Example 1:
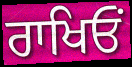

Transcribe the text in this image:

ਰਾਖਿਓਂ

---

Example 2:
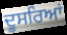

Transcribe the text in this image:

ਦੂਸਰਿਆਂ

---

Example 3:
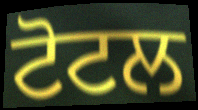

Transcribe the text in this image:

ਟੋਟਲ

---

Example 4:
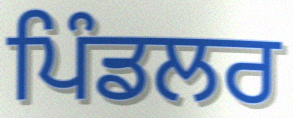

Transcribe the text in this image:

ਪਿੰਡਲਰ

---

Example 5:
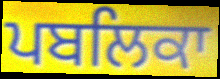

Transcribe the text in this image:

ਪਬਲਿਕਾ